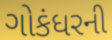
ગોકંધરની